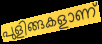
പുളിങ്ങകളാണ്